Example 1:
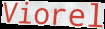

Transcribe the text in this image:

Viorel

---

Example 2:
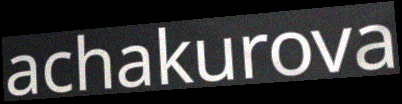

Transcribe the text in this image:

achakurova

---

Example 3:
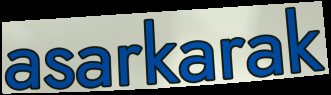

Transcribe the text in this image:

asarkarak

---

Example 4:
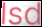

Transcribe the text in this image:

lsd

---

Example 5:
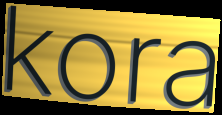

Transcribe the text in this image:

kora